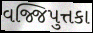
વજ્જિપુત્તકા